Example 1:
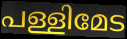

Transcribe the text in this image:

പള്ളിമേട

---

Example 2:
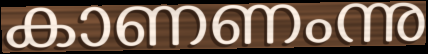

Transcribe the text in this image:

കാണണംന്നു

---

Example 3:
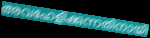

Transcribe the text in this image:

അവഹേളിക്കുന്നതിനായി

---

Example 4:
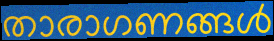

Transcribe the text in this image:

താരാഗണങ്ങൾ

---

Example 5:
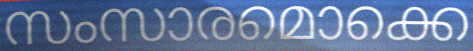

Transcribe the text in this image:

സംസാരമൊക്കെ